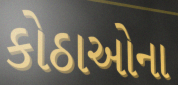
કોઠાઓના